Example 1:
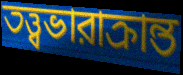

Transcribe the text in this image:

তত্ত্বভারাক্রান্ত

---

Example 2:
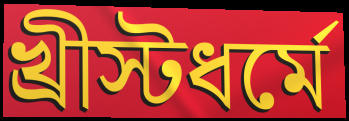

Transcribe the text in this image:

খ্রীস্টধর্মে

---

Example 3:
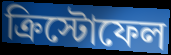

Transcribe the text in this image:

ক্রিস্টোফেল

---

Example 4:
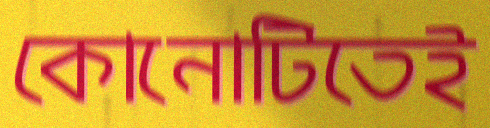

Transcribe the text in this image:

কোনোটিতেই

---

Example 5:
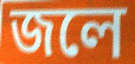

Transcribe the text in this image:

জলে